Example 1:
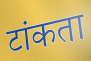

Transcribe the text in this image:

टांकता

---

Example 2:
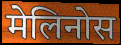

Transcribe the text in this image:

मेलिनोस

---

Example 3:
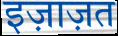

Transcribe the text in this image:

इज़ाज़त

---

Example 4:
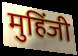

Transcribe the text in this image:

मुहिंजी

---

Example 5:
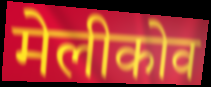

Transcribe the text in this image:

मेलीकोव